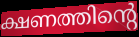
ക്ഷണത്തിന്റെ